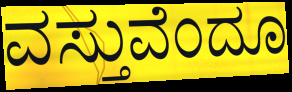
ವಸ್ತುವೆಂದೂ